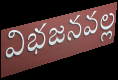
విభజనవల్ల